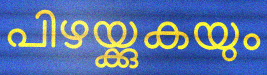
പിഴയ്ക്കുകയും